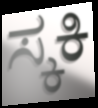
ಸ್ಕಕಿ